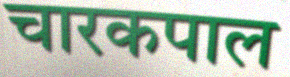
चारकपाल